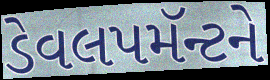
ડેવલપમૅન્ટને